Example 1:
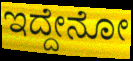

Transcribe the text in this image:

ಇದ್ದೇನೋ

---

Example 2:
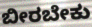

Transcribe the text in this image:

ಬೀರಬೇಕು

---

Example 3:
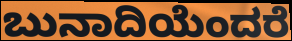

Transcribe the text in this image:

ಬುನಾದಿಯೆಂದರೆ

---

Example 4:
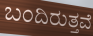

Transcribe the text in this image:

ಬಂದಿರುತ್ತವೆ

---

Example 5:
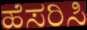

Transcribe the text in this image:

ಹೆಸರಿಸಿ